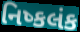
નિષ્કલંક